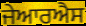
ਜੇਆਰਐਸ